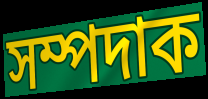
সম্পদাক